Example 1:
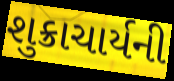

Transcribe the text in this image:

શુક્રાચાર્યની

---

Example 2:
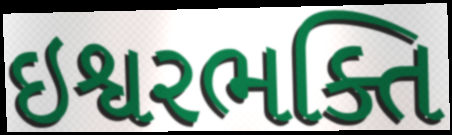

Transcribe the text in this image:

ઇશ્વરભક્તિ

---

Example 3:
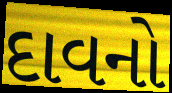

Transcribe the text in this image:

દાવનો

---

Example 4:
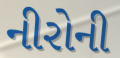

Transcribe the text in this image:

નીરોની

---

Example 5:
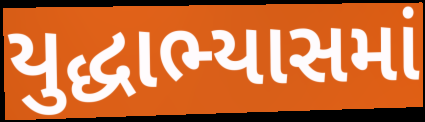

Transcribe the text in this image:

યુદ્ધાભ્યાસમાં